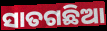
ସାତଗଛିଆ